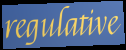
regulative